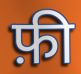
फ़ी